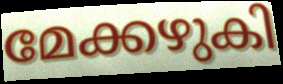
മേക്കഴുകി